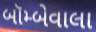
બૉમ્બેવાલા